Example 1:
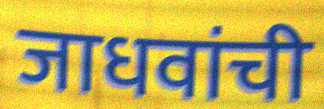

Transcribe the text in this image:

जाधवांची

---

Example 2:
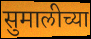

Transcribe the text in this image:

सुमालीच्या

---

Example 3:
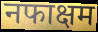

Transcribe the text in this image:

नफाक्षम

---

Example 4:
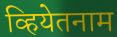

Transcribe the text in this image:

व्हियेतनाम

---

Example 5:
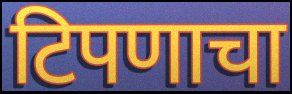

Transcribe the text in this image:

टिपणाचा